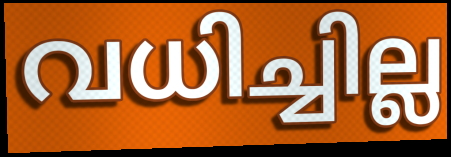
വധിച്ചില്ല